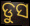
ଡୁସ